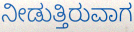
ನೀಡುತ್ತಿರುವಾಗ